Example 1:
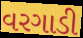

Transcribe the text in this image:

વરગાડી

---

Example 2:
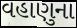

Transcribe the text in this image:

વહાણુના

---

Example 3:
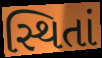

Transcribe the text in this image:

સ્થિતાં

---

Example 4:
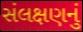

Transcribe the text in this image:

સંલક્ષણનું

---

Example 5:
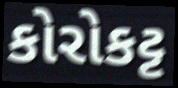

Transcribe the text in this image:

કોરોકટ્ટ